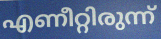
എണീറ്റിരുന്ന്